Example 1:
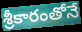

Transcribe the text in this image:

శ్రీకారంతోనే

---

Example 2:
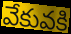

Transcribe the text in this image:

వేకువకి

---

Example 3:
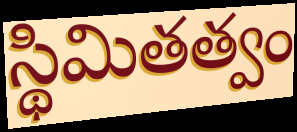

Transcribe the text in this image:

స్థిమితత్వం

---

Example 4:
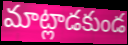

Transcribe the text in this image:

మాట్లాడకుండ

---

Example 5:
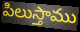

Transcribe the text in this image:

పిలుస్తాము